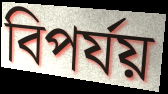
বিপৰ্যয়